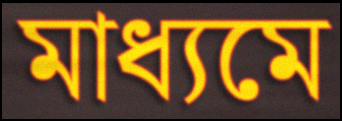
মাধ্যমে